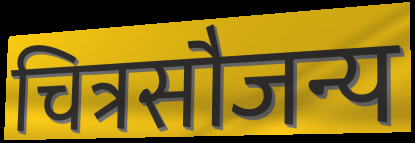
चित्रसौजन्य